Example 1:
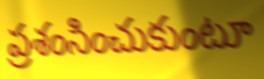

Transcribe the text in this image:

ప్రశంసించుకుంటూ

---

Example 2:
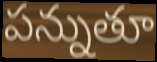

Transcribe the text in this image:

పన్నుతూ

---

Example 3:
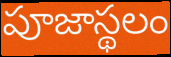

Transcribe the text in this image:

పూజాస్థలం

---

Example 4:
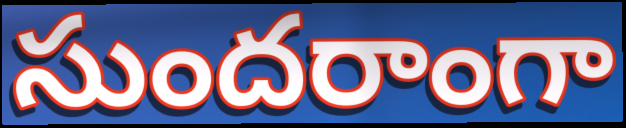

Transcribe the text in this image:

సుందరాంగా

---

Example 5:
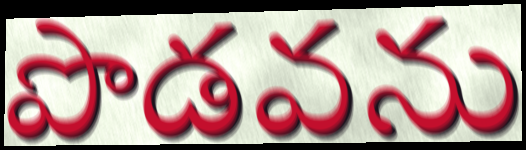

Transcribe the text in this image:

పొడవను